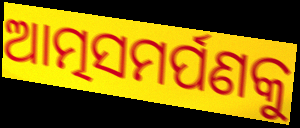
ଆତ୍ମସମର୍ପଣକୁ